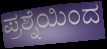
ಪ್ರಶ್ನೆಯಿಂದ